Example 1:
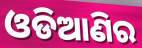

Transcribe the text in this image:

ଓଡିଆଣିର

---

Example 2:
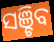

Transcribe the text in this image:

ସଞ୍ଚିବ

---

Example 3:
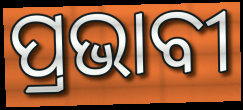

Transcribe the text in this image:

ପ୍ରଭାବୀ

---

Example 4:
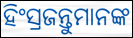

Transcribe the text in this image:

ହିଂସ୍ରଜନ୍ତୁମାନଙ୍କ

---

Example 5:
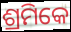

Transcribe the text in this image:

ଶ୍ରମିକେ